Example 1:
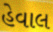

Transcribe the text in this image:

હેવાલ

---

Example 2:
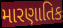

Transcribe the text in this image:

મારણાતિક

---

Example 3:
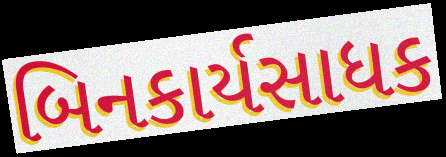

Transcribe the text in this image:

બિનકાર્યસાધક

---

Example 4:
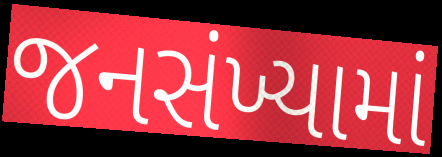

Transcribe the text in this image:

જનસંખ્યામાં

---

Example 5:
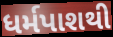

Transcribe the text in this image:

ધર્મપાશથી